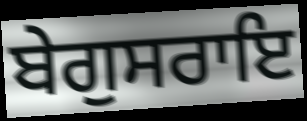
ਬੇਗੁਸਰਾਇ